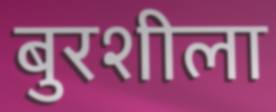
बुरशीला